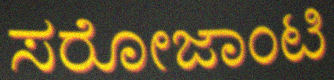
ಸರೋಜಾಂಟಿ